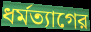
ধর্মত্যাগের